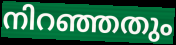
നിറഞ്ഞതും